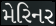
મેરિનર